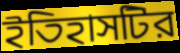
ইতিহাসটির